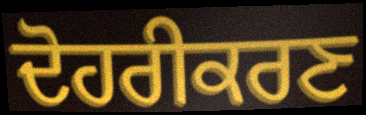
ਦੋਹਰੀਕਰਣ